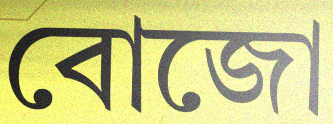
বোজো